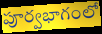
పూర్వభాగంలో